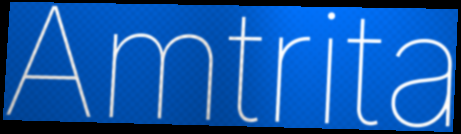
Amtrita